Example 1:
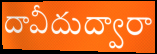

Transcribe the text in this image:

దావీదుద్వారా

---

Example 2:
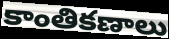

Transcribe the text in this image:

కాంతికణాలు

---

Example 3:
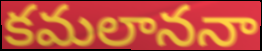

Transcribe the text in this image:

కమలాననా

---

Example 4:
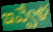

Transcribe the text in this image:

ఇవ్వేళ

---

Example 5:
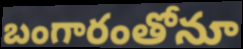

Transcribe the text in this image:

బంగారంతోనూ